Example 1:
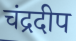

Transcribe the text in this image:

चंद्रदीप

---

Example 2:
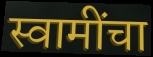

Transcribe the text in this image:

स्वामींचा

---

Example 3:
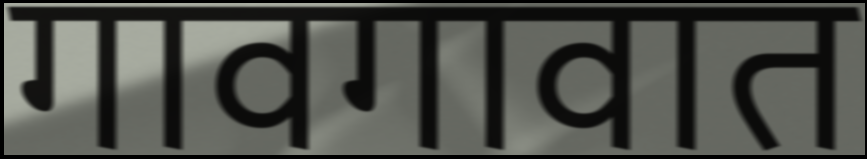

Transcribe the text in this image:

गावगावात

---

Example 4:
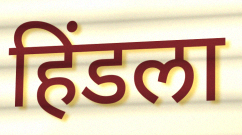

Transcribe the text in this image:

हिंडला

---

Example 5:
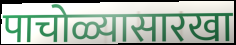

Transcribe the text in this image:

पाचोळ्यासारखा